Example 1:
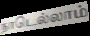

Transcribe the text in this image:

நாடெல்லாம்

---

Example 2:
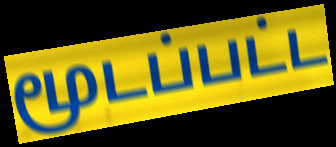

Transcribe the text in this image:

மூடப்பட்ட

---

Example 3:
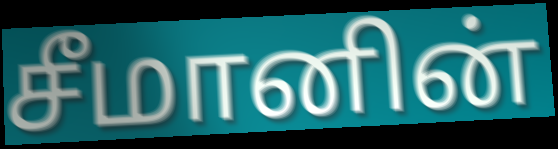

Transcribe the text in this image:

சீமானின்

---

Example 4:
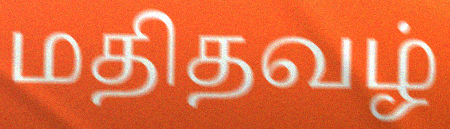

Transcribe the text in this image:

மதிதவழ்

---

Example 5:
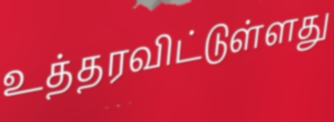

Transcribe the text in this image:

உத்தரவிட்டுள்ளது